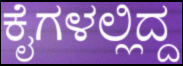
ಕೈಗಳಲ್ಲಿದ್ದ